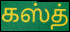
கஸ்த்